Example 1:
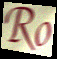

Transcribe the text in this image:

Ro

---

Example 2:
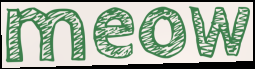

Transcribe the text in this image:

meow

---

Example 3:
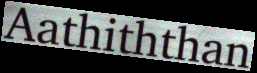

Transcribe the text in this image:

Aathiththan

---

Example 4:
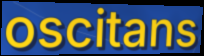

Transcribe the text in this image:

oscitans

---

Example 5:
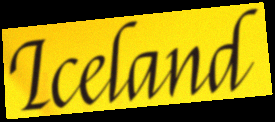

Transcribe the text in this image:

Iceland